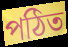
পঠিত